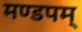
मण्डपम्